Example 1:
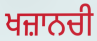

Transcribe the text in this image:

ਖਜ਼ਾਨਚੀ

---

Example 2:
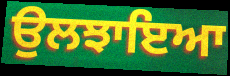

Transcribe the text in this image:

ਉਲਝਾਇਆ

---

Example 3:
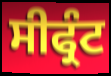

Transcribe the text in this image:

ਸੀਫ੍ਰੰਟ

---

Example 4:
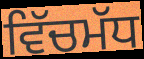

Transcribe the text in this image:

ਵਿੱਚਮੱਧ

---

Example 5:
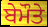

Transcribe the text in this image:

ਬੇਮੌਤੇ